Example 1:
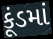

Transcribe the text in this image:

કૂંડમાં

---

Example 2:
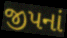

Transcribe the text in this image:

જીપનાં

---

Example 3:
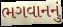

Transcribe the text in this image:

ભગવાનનું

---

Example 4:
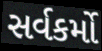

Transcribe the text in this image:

સર્વકર્મો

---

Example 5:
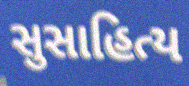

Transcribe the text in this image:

સુસાહિત્ય